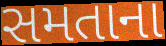
સમતાના